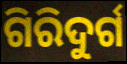
ଗିରିଦୁର୍ଗ